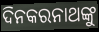
ଦିନକରନାଥଙ୍କୁ